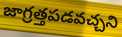
జాగ్రత్తపడవచ్చని